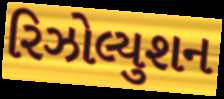
રિઝોલ્યુશન